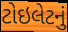
ટોઇલેટનું